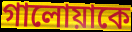
গালোয়াকে